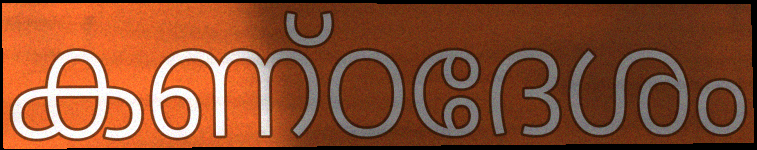
കണ്ഠദേശം